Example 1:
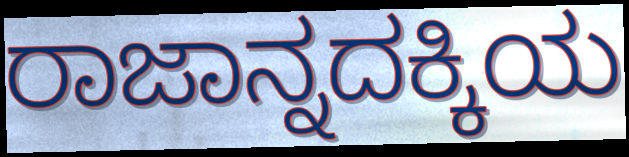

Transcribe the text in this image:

ರಾಜಾನ್ನದಕ್ಕಿಯ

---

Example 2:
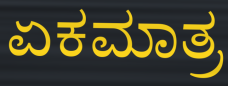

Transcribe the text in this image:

ಏಕಮಾತ್ರ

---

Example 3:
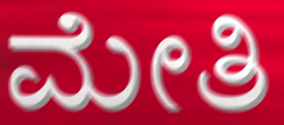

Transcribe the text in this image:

ಮೇತಿ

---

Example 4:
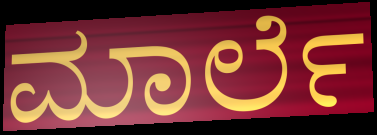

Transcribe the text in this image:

ಮಾರ್ಲೆ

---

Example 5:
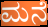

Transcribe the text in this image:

ಮನೆ